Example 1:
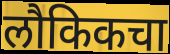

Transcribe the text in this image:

लौकिकचा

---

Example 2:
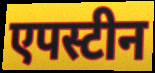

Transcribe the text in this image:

एपस्टीन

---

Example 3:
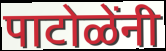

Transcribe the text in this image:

पाटोळेंनी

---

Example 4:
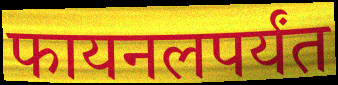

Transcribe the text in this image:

फायनलपर्यंत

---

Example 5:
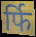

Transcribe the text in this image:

र्फि